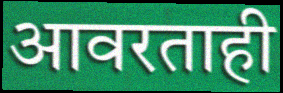
आवरताही